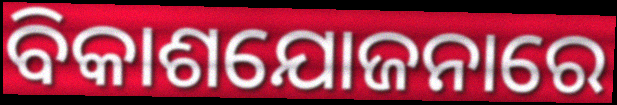
ବିକାଶଯୋଜନାରେ